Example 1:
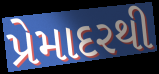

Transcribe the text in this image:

પ્રેમાદરથી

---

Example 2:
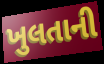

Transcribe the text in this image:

ખુલતાની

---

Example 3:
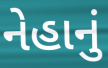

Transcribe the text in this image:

નેહાનું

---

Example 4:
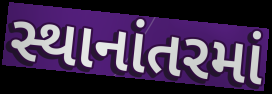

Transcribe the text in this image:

સ્થાનાંતરમાં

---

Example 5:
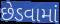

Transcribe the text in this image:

છેડવામાં